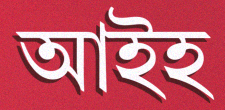
আইহ